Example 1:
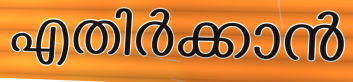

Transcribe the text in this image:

എതിർക്കാൻ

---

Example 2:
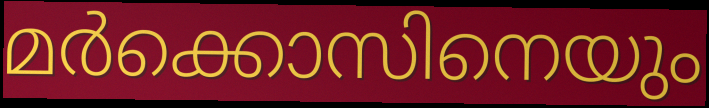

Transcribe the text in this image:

മർക്കൊസിനെയും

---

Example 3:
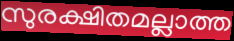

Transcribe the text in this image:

സുരക്ഷിതമല്ലാത്ത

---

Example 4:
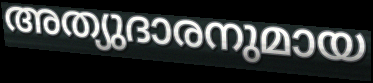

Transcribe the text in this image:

അത്യുദാരനുമായ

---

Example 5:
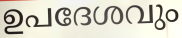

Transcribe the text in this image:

ഉപദേശവും